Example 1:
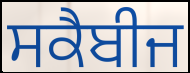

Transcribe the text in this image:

ਸਕੈਬੀਜ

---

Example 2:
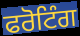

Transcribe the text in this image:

ਫਰੋਟਿੰਗ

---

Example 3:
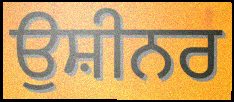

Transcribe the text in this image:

ਉਸ਼ੀਨਰ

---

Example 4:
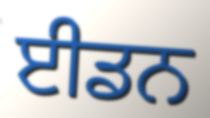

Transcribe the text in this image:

ਈਡਨ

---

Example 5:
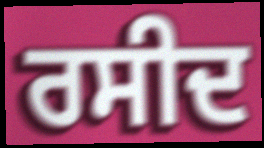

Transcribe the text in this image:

ਰਸੀਦ